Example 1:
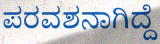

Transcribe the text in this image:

ಪರವಶನಾಗಿದ್ದೆ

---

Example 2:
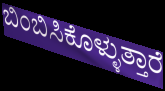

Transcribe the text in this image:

ಬಿಂಬಿಸಿಕೊಳ್ಳುತ್ತಾರೆ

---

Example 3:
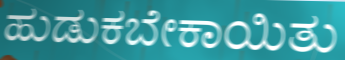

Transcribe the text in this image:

ಹುಡುಕಬೇಕಾಯಿತು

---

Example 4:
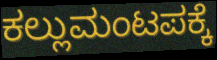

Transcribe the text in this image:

ಕಲ್ಲುಮಂಟಪಕ್ಕೆ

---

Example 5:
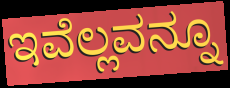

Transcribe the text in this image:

ಇವೆಲ್ಲವನ್ನೂ